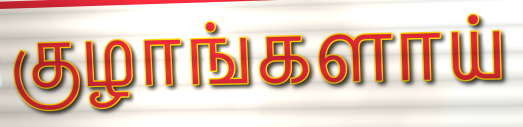
குழாங்களாய்